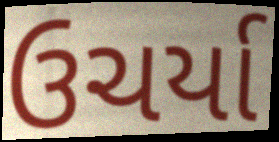
ઉચર્યા